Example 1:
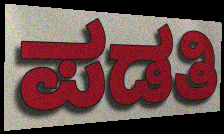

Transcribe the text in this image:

ಪಡತಿ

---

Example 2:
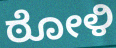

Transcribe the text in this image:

ಠೋಳಿ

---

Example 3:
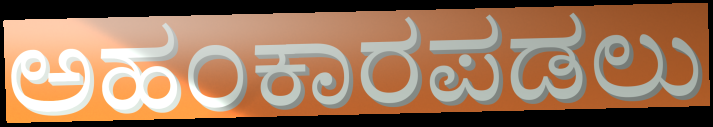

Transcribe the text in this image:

ಅಹಂಕಾರಪಡಲು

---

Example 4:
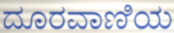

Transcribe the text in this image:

ದೂರವಾಣಿಯ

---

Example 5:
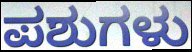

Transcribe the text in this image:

ಪಶುಗಳು